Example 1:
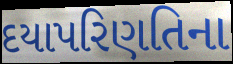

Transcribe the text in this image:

દયાપરિણતિના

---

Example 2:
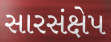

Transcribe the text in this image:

સારસંક્ષેપ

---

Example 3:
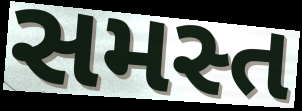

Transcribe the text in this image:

સમસ્ત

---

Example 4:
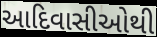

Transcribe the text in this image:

આદિવાસીઓથી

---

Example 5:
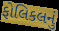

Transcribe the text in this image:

ફોલિકલનું